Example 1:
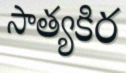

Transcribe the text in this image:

సాత్యకిర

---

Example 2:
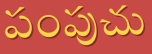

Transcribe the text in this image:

పంపుచు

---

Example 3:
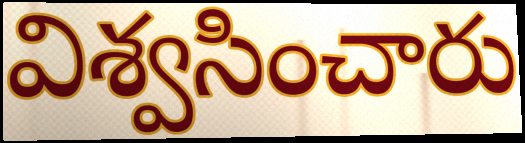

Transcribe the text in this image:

విశ్వసించారు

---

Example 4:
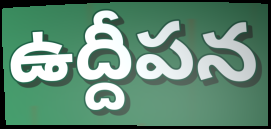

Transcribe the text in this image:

ఉద్దీపన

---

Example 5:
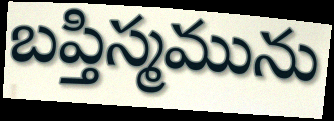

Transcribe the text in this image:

బప్తిస్మమును